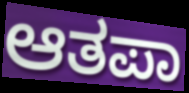
ಆತಪಾ